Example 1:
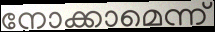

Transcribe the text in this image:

നോക്കാമെന്ന്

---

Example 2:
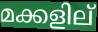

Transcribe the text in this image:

മക്കളില്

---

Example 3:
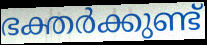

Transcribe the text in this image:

ഭക്തർക്കുണ്ട്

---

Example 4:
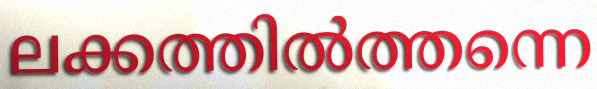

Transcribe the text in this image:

ലക്കത്തിൽത്തന്നെ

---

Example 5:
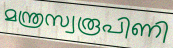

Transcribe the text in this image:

മന്ത്രസ്വരൂപിണി